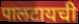
पालटायची